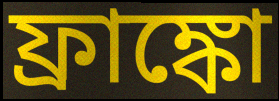
ফ্রাঙ্কো